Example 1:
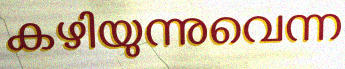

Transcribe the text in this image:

കഴിയുന്നുവെന്ന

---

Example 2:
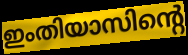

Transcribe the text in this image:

ഇംതിയാസിന്റെ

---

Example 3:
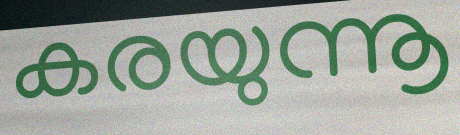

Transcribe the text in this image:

കരയുന്നൂ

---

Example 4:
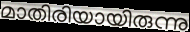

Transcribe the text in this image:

മാതിരിയായിരുന്നു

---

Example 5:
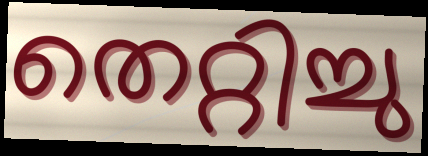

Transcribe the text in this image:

തെറ്റിച്ചു